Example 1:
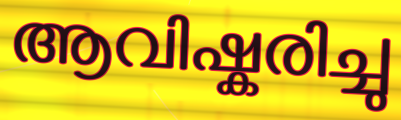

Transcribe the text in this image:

ആവിഷ്കരിച്ചു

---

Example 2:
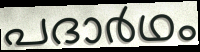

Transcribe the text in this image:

പദാർഥം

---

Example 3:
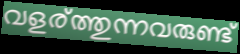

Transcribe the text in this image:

വളര്ത്തുന്നവരുണ്ട്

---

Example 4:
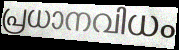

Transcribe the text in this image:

പ്രധാനവിധം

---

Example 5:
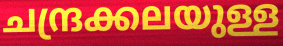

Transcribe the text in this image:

ചന്ദ്രക്കലയുള്ള